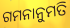
ଗମନାନୁମତି